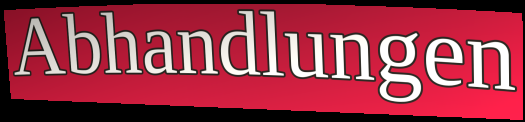
Abhandlungen